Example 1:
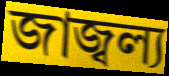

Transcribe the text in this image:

জাজ্বল্য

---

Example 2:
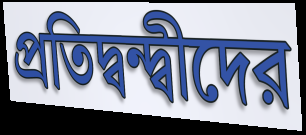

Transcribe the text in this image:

প্রতিদ্বন্দ্বীদের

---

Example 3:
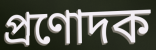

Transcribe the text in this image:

প্রণোদক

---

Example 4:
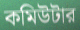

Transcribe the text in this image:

কমিউটার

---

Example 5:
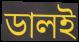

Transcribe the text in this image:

ডালই